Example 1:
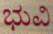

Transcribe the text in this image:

ಭುವಿ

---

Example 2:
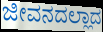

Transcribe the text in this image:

ಜೀವನದಲ್ಲಾದ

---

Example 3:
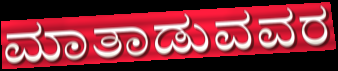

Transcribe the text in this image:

ಮಾತಾಡುವವರ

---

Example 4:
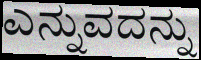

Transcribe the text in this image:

ಎನ್ನುವದನ್ನು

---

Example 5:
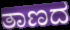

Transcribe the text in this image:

ತಾಣದ